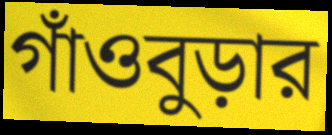
গাঁওবুড়ার